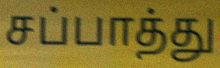
சப்பாத்து